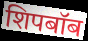
शिपबॉब